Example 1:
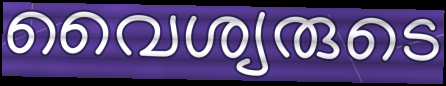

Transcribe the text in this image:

വൈശ്യരുടെ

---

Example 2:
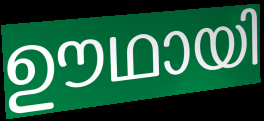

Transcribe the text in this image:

ഊഥായി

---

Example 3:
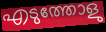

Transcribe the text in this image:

എടുത്തോളു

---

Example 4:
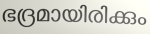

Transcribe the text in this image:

ഭദ്രമായിരിക്കും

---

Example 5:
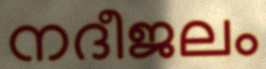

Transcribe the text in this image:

നദീജലം